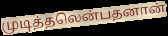
முடித்தலென்பதனான்